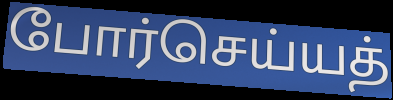
போர்செய்யத்